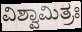
ವಿಶ್ವಾಮಿತ್ರಃ